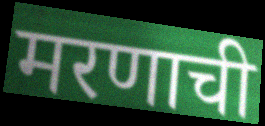
मरणाची